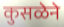
कुसळेने